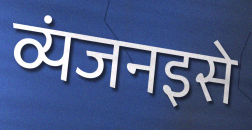
व्यंजनइसे